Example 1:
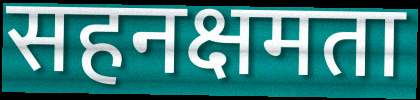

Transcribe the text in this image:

सहनक्षमता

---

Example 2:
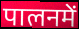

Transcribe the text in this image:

पालनमें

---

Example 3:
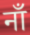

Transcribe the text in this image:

नाँ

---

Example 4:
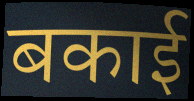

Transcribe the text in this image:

बकाई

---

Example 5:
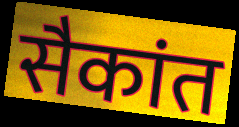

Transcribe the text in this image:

सैकांत